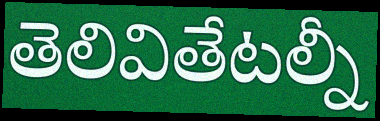
తెలివితేటల్నీ